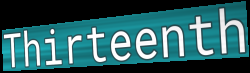
Thirteenth